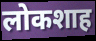
लोकशाह